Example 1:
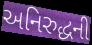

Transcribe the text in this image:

અનિરુદ્ધની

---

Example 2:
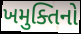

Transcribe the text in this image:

ખમુક્તિનો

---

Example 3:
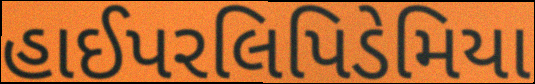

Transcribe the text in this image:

હાઈપરલિપિડેમિયા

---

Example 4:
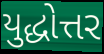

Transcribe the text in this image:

યુદ્ધોત્તર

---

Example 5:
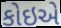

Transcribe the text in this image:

કોઇએ